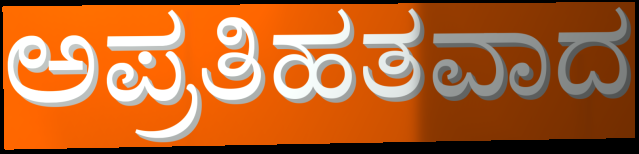
ಅಪ್ರತಿಹತವಾದ